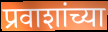
प्रवाशांच्या